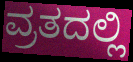
ವ್ರತದಲ್ಲಿ